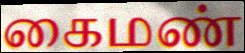
கைமண்